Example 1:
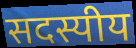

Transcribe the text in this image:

सदस्यीय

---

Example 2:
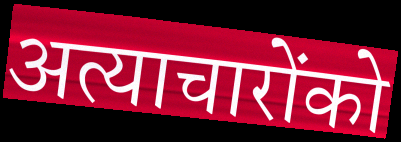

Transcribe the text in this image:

अत्याचारोंको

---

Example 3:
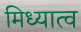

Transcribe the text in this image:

मिध्यात्व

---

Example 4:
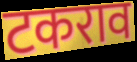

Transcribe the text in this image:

टकराव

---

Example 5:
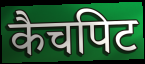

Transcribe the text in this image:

कैचपिट